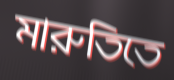
মারুতিতে